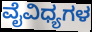
ವೈವಿಧ್ಯಗಳ